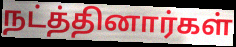
நட்த்தினார்கள்